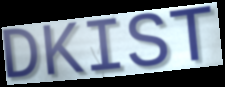
DKIST